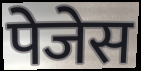
पेजेस